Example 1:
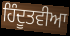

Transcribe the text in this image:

ਹਿੰਦੂਤਵੀਆ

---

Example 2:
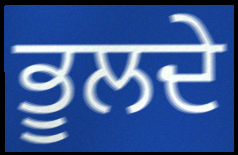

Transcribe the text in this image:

ਭੂਲਦੇ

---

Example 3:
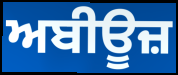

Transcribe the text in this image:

ਅਬੀਊਜ਼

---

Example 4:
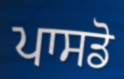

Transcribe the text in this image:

ਪਾਸਡੋ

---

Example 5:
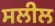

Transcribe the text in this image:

ਸਲੀਲ